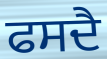
ਫਸਦੈ